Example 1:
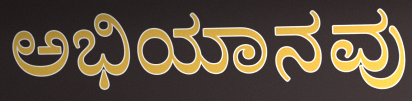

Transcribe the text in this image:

ಅಭಿಯಾನವು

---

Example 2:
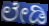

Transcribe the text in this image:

ಲೇಡಿ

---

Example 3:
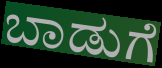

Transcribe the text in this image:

ಬಾಡುಗೆ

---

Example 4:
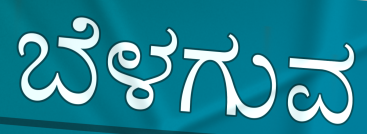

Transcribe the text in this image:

ಬೆಳಗುವ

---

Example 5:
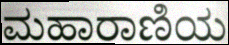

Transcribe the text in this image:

ಮಹಾರಾಣಿಯ